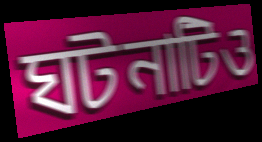
ঘটনাটিও